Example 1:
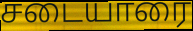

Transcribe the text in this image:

சடையாரை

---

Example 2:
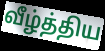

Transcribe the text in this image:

வீழ்த்திய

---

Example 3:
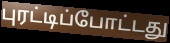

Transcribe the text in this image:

புரட்டிப்போட்டது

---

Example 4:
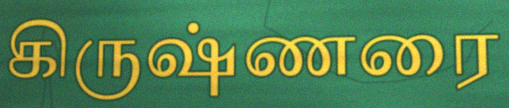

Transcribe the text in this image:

கிருஷ்ணரை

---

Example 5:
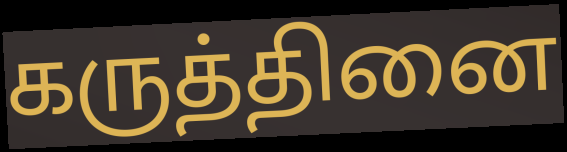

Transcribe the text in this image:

கருத்தினை